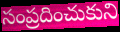
సంప్రదించుకుని